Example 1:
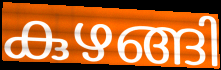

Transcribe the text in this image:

കുഴങ്ങി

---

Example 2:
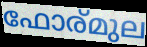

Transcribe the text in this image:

ഫോര്മുല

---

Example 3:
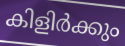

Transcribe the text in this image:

കിളിർക്കും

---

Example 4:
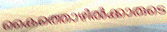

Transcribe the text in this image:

കൈത്തൊഴിൽക്കാരുടെ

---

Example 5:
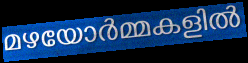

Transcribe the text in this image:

മഴയോർമ്മകളിൽ